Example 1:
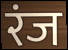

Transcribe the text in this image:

रंज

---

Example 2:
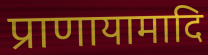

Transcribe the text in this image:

प्राणायामादि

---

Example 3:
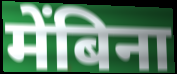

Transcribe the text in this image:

मेंबिना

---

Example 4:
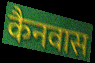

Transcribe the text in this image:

कैनवास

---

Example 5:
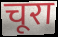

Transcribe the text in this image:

चूरा